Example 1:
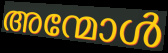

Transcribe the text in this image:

അന്മോൾ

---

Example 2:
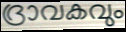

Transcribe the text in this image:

ദ്രാവകവും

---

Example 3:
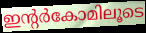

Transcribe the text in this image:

ഇന്റർകോമിലൂടെ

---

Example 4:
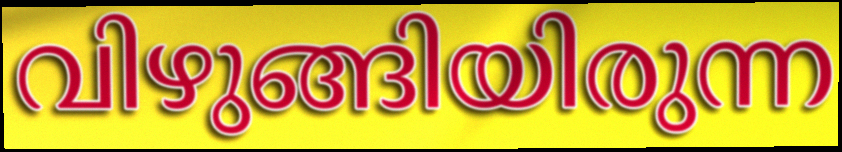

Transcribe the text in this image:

വിഴുങ്ങിയിരുന്ന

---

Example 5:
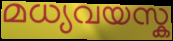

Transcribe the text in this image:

മധ്യവയസ്ക